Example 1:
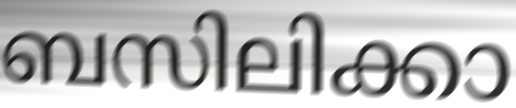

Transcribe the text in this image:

ബസിലിക്കാ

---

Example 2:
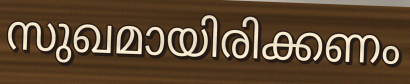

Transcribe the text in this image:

സുഖമായിരിക്കണം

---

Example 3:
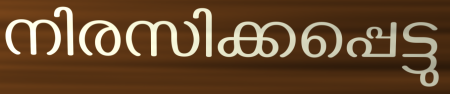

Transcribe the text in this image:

നിരസിക്കപ്പെട്ടു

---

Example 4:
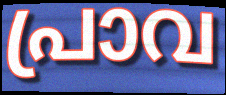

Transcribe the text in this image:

പ്രാവ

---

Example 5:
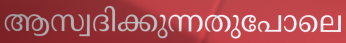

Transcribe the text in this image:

ആസ്വദിക്കുന്നതുപോലെ